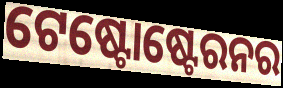
ଟେଷ୍ଟୋଷ୍ଟେରନର